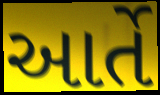
આર્તે